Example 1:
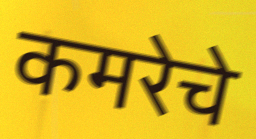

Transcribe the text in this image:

कमरेचे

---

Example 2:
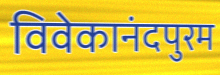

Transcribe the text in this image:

विवेकानंदपुरम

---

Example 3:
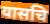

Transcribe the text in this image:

यासचि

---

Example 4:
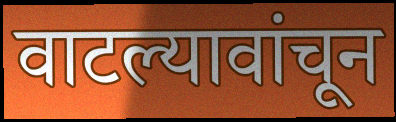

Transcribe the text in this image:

वाटल्यावांचून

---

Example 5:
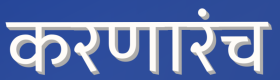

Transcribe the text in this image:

करणारंच